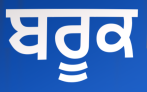
ਬਰੂਕ